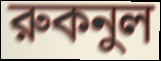
রুকনুল